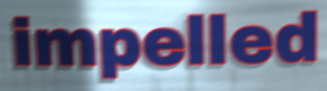
impelled